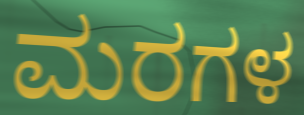
ಮರಗಳ